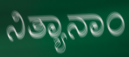
ನಿತ್ಯಾನಾಂ